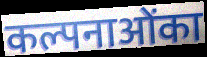
कल्पनाओंका